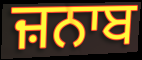
ਜ਼ਨਾਬ